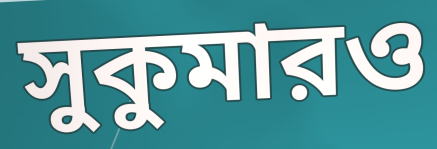
সুকুমারও